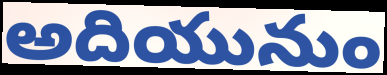
అదియునుం